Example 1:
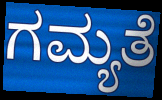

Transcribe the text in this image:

ಗಮ್ಯತೆ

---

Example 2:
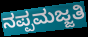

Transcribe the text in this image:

ನಪ್ಪಮಜ್ಜತಿ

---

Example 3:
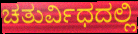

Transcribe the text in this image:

ಚತುರ್ವಿಧದಲ್ಲಿ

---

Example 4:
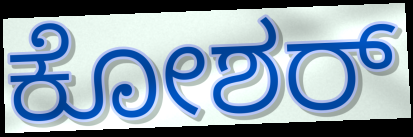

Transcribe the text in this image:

ಕೋಶರ್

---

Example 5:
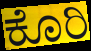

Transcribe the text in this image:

ಕೊರಿ